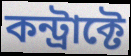
কন্ট্রাক্টে